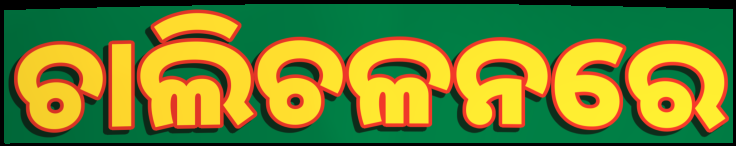
ଚାଲିଚଳନରେ